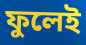
ফুলেই